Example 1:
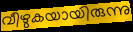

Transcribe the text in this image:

വീഴുകയായിരുന്നു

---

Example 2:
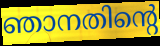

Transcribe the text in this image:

ഞാനതിന്റെ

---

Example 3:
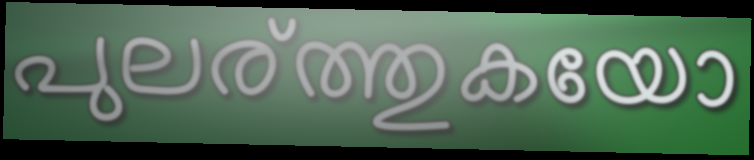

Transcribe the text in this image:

പുലര്ത്തുകയോ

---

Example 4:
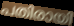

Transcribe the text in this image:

പതിരായി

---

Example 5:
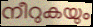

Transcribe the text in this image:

നീറുകയും